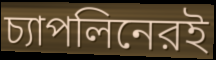
চ্যাপলিনেরই